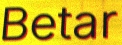
Betar